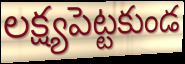
లక్ష్యపెట్టకుండ